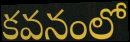
కవనంలో